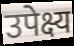
उपेक्ष्य